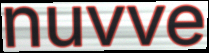
nuvve